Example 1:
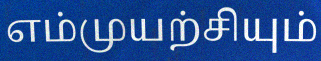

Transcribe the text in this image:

எம்முயற்சியும்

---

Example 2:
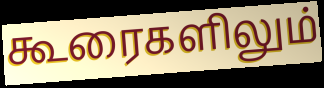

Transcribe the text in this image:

கூரைகளிலும்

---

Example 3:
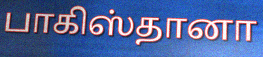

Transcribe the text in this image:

பாகிஸ்தானா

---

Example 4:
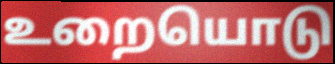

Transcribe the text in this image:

உறையொடு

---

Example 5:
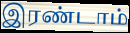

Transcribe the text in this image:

இரண்டாம்